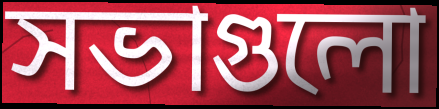
সভাগুলো